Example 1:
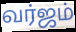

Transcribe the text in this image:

வர்ஜம்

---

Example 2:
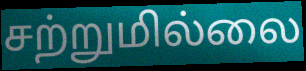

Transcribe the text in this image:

சற்றுமில்லை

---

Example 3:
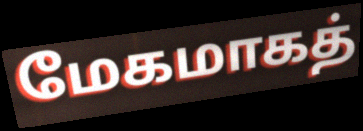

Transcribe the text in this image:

மேகமாகத்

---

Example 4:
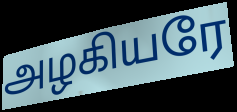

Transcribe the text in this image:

அழகியரே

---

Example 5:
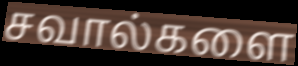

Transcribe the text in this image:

சவால்களை